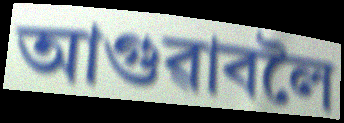
আগুৱাবলৈ